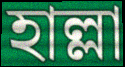
হাল্লা